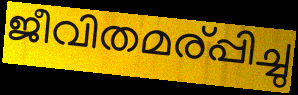
ജീവിതമര്പ്പിച്ചു